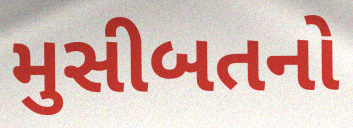
મુસીબતનો